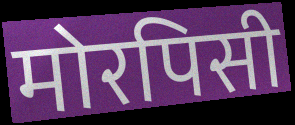
मोरपिसी